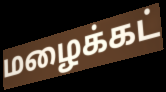
மழைக்கட்